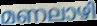
മണലാഴി